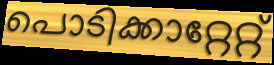
പൊടിക്കാറ്റേറ്റ്